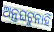
ଅନ୍ତଘଟୁନାହିଁ